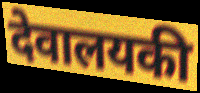
देवालयकी